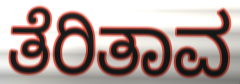
ತೆರಿತಾವ